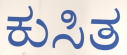
ಕುಸಿತ